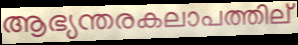
ആഭ്യന്തരകലാപത്തില്